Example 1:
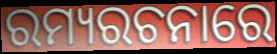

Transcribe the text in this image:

ରମ୍ୟରଚନାରେ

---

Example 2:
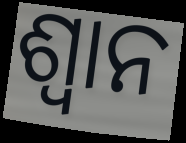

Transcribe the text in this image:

ଶ୍ୱାନ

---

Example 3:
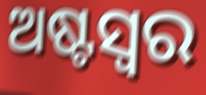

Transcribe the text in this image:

ଅଷ୍ଟସ୍ୱର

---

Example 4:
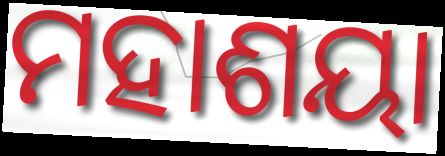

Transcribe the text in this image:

ମହାଶୟା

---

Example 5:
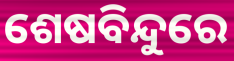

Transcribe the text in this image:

ଶେଷବିନ୍ଦୁରେ